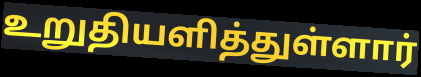
உறுதியளித்துள்ளார்